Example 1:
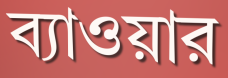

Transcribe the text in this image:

ব্যাওয়ার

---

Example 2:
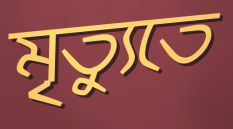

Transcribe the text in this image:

মৃত্যুতে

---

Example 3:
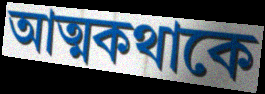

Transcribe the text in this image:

আত্মকথাকে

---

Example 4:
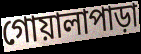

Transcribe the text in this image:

গোয়ালাপাড়া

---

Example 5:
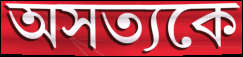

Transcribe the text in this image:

অসত্যকে